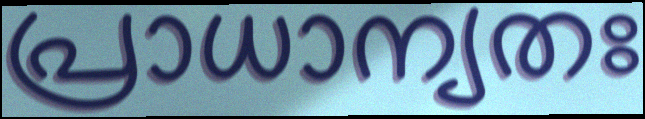
പ്രാധാന്യതഃ